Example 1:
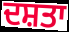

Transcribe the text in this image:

ਦਸ਼ਤਾ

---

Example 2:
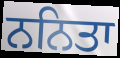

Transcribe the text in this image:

ਨਨਿਤਾ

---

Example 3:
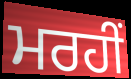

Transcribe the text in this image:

ਮਰਹੀਂ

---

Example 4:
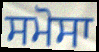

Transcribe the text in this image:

ਸਮੋਸਾ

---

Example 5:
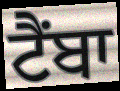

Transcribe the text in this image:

ਟੈਂਬਾ